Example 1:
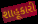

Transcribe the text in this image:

શાહૂકારી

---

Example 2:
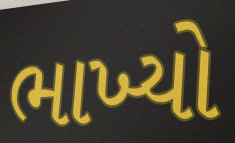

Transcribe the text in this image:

ભાખ્યો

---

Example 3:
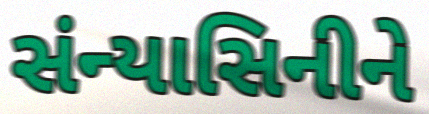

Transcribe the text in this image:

સંન્યાસિનીને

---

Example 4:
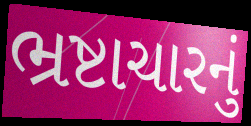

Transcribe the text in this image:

ભ્રષ્ટાચારનું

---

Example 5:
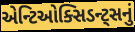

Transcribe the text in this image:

એન્ટિઓક્સિડન્ટ્સનું